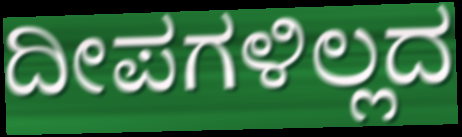
ದೀಪಗಳಿಲ್ಲದ